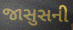
જાસુસની